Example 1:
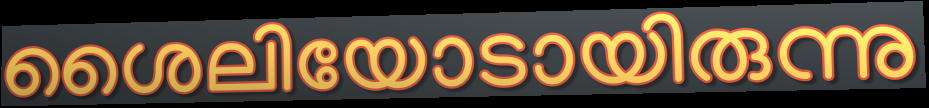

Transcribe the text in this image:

ശൈലിയോടായിരുന്നു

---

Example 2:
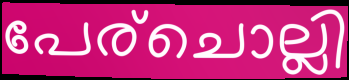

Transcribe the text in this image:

പേര്ചൊല്ലി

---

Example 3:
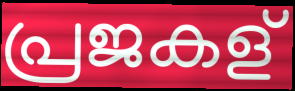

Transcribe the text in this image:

പ്രജകള്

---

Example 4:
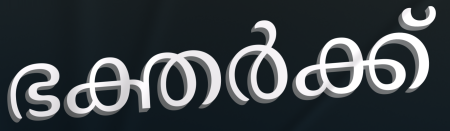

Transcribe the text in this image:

ഭക്തർക്ക്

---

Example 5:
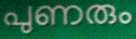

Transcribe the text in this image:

പുണരും